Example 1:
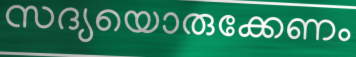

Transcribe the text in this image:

സദ്യയൊരുക്കേണം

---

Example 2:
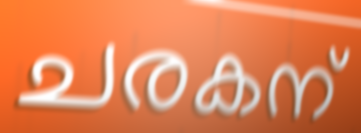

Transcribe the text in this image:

ചരകന്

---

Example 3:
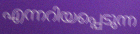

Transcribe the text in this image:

എന്നറിയപ്പെടുന്ന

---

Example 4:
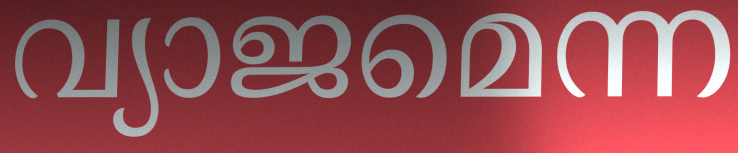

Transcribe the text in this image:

വ്യാജമെന്ന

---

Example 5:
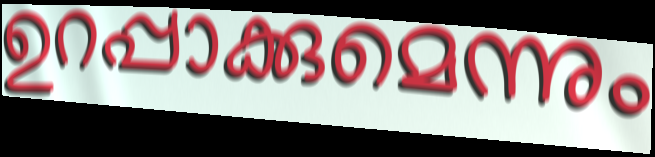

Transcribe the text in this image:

ഉറപ്പാക്കുമെന്നും